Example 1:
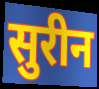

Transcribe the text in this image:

सुरीन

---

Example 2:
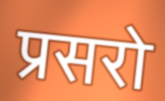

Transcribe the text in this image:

प्रसरो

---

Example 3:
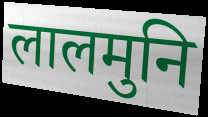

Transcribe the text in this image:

लालमुनि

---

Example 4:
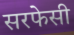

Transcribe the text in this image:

सरफेसी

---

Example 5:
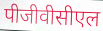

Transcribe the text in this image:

पीजीवीसीएल